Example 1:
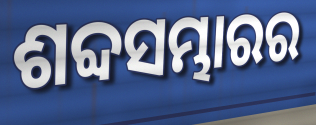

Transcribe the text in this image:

ଶବ୍ଦସମ୍ଭାରର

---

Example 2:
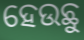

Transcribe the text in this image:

ହେଉଛୁ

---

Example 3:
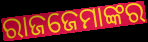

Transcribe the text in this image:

ରାଜଜେମାଙ୍କର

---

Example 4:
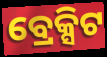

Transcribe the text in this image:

ବ୍ରେକ୍ସିଟ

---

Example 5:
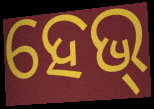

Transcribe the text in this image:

ହେଭ୍